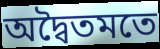
অদ্বৈতমতে